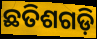
ଛତିଶଗଡ଼ି